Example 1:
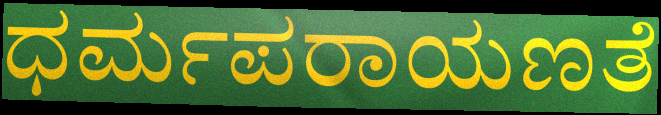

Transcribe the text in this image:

ಧರ್ಮಪರಾಯಣತೆ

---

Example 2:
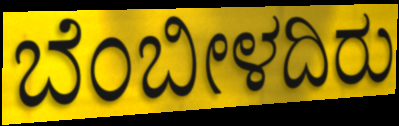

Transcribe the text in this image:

ಬೆಂಬೀಳದಿರು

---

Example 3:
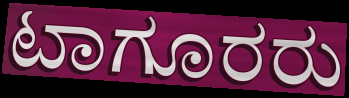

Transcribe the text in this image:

ಟಾಗೂರರು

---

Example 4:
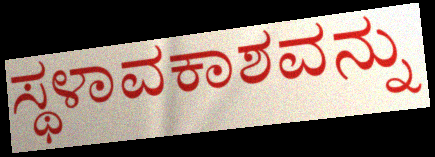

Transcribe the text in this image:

ಸ್ಥಳಾವಕಾಶವನ್ನು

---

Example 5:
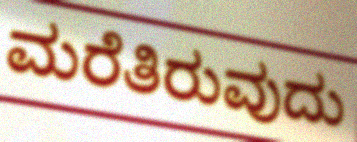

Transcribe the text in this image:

ಮರೆತಿರುವುದು